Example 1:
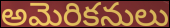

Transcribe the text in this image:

అమెరికనులు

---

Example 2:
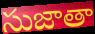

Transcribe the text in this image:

సుజాతా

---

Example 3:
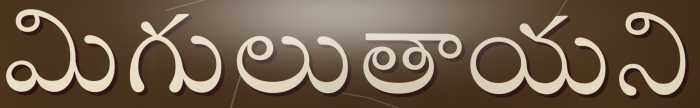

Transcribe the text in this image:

మిగులుతాయని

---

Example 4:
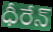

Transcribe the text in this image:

ధీరేన్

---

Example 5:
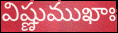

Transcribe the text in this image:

విష్ణుముఖాః